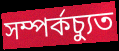
সম্পর্কচ্যুত